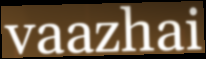
vaazhai